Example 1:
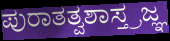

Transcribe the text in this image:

ಪುರಾತತ್ವಶಾಸ್ತ್ರಜ್ಞ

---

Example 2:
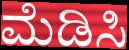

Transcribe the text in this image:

ಮೆಡಿಸಿ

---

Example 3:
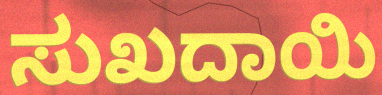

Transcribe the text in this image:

ಸುಖದಾಯಿ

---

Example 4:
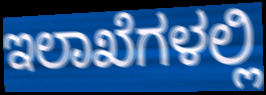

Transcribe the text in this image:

ಇಲಾಖೆಗಳಲ್ಲಿ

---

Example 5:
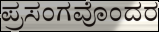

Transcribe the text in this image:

ಪ್ರಸಂಗವೊಂದರ